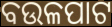
ବଉଳପାଟ